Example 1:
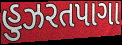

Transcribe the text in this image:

હુઝરતપાગા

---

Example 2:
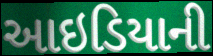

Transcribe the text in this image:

આઇડિયાની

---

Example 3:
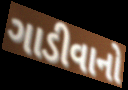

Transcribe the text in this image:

ગાડીવાનો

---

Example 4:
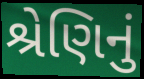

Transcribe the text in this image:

શ્રેણિનું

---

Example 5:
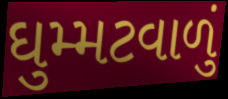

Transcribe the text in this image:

ઘુમ્મટવાળું